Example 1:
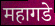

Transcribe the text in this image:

महागडे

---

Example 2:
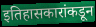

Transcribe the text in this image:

इतिहासकारांकडून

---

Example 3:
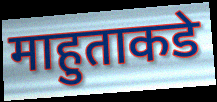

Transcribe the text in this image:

माहुताकडे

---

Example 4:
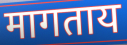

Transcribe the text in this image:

मागताय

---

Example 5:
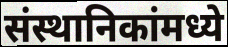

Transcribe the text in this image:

संस्थानिकांमध्ये